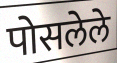
पोसलेले